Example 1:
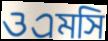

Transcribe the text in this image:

ওএমসি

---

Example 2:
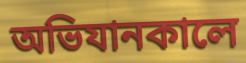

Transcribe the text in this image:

অভিযানকালে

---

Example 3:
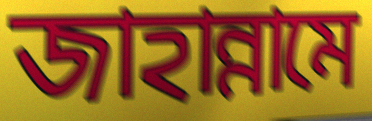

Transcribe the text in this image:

জাহান্নামে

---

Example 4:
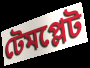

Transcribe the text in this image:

টেমপ্লেট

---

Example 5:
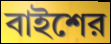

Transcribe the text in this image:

বাইশের